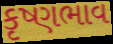
કૃષ્ણભાવ